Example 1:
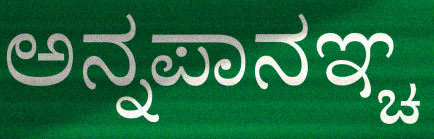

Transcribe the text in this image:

ಅನ್ನಪಾನಞ್ಚ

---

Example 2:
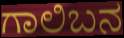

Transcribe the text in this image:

ಗಾಲಿಬನ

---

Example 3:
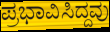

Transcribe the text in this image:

ಪ್ರಭಾವಿಸಿದ್ದವು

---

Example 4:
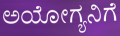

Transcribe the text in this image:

ಅಯೋಗ್ಯನಿಗೆ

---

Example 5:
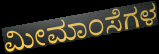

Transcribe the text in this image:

ಮೀಮಾಂಸೆಗಳ